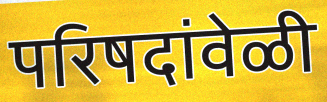
परिषदांवेळी